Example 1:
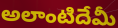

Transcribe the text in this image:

అలాంటిదేమీ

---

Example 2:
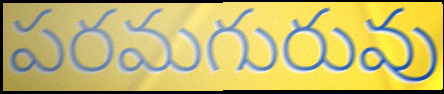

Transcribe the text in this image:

పరమగురువు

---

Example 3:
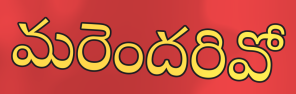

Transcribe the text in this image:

మరెందరివో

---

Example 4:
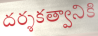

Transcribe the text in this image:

దర్శకత్వానికి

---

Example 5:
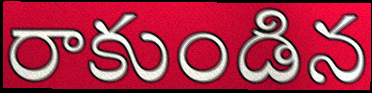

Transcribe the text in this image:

రాకుండిన